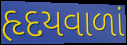
હૃદયવાળાં